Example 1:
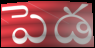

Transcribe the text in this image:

పెడ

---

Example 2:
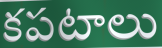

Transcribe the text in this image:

కపటాలు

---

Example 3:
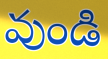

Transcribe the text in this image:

వుండి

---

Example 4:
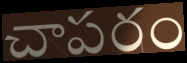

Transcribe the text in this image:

చాపరం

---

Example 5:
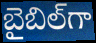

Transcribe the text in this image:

బైబిల్‌గా